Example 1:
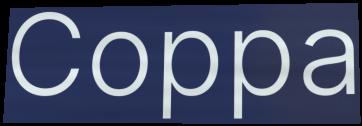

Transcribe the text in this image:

Coppa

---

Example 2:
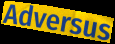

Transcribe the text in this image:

Adversus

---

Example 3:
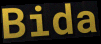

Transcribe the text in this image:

Bida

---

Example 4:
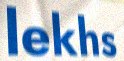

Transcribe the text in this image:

lekhs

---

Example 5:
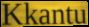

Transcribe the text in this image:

Kkantu